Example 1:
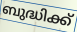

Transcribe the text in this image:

ബുദ്ധിക്ക്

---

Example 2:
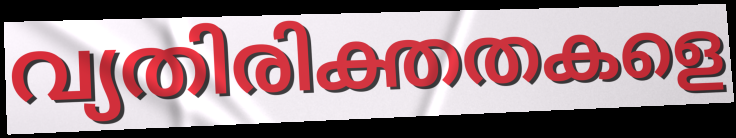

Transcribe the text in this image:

വ്യതിരിക്തതകളെ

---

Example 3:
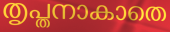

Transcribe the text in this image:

തൃപ്തനാകാതെ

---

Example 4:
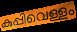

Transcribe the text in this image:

കുപ്പിവെള്ളം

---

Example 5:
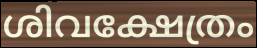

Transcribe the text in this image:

ശിവക്ഷേത്രം